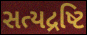
સત્યદ્રષ્ટિ